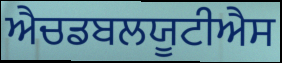
ਐਚਡਬਲਯੂਟੀਐਸ